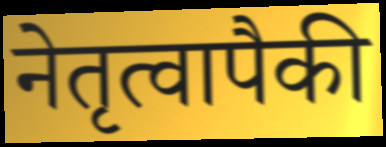
नेतृत्वापैकी